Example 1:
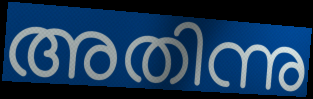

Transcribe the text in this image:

അതിന്നു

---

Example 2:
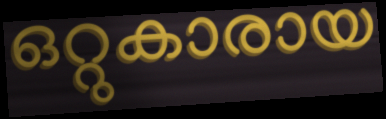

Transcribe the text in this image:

ഒറ്റുകാരായ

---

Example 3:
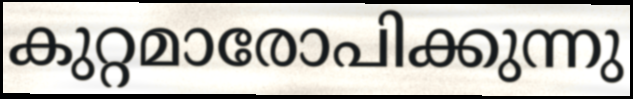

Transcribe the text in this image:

കുറ്റമാരോപിക്കുന്നു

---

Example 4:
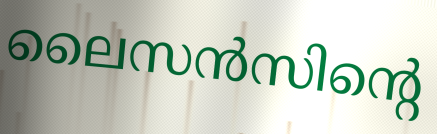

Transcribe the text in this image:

ലൈസൻസിന്റെ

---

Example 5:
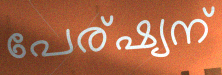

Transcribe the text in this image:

പേര്ഷ്യന്